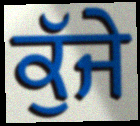
ਕੁੱਜੇ